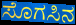
ಸೊಗಸಿನ